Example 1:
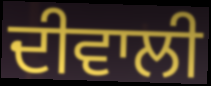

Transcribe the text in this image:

ਦੀਵਾਲੀ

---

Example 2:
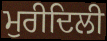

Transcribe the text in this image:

ਮੁਰੀਦਿਲੀ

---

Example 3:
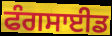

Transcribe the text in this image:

ਫੰਗਸਾਈਡ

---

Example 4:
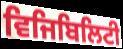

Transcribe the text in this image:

ਵਿਜਿਬਿਲਿਟੀ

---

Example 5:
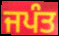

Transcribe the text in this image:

ਜਪੰਤ